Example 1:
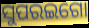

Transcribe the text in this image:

ସୁପରଇଗୋ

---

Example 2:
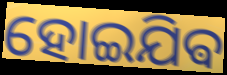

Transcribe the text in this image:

ହୋଇଯିଵ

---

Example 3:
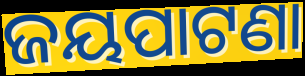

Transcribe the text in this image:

ଜୟପାଟଣା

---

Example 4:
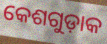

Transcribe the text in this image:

କେଶଗୁଡ଼ାକ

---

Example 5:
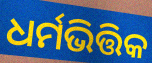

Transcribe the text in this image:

ଧର୍ମଭିତ୍ତିକ